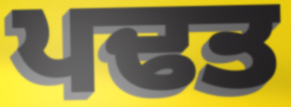
ਪਢਤ